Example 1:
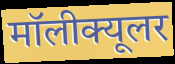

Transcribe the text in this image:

मॉलीक्यूलर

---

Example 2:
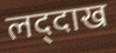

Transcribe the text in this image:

लद्‌दाख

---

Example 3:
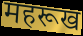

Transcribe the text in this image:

महरूख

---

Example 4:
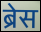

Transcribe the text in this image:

ब्रेस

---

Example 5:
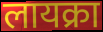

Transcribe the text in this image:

लायक्रा